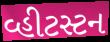
વ્હીટસ્ટન